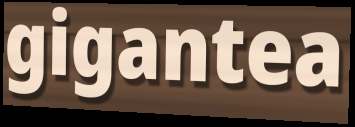
gigantea